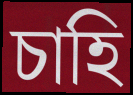
চাহি